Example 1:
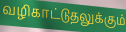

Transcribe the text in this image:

வழிகாட்டுதலுக்கும்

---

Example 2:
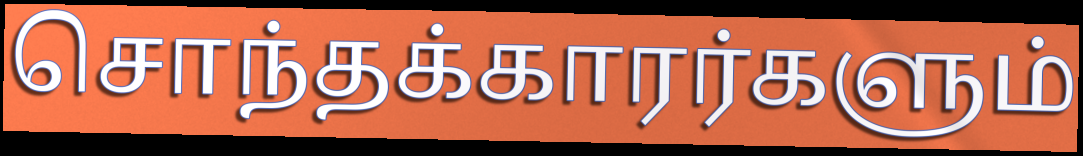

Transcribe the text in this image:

சொந்தக்காரர்களும்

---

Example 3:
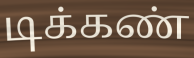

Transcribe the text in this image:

டிக்கண்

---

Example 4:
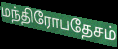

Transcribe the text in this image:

மந்திரோபதேசம்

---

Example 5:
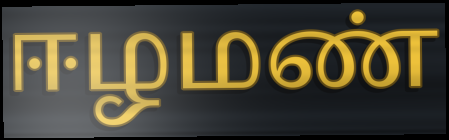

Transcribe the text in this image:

ஈழமண்